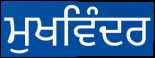
ਮੁਖਵਿੰਦਰ